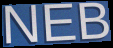
NEB